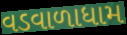
વડવાળાધામ